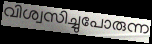
വിശ്വസിച്ചുപോരുന്ന